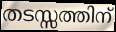
തടസ്സത്തിന്